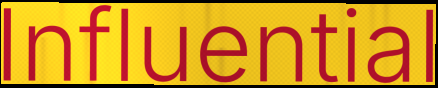
Influential